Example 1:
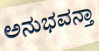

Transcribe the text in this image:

ಅನುಭವನ್ತಾ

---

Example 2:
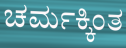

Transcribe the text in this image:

ಚರ್ಮಕ್ಕಿಂತ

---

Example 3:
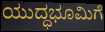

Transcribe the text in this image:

ಯುದ್ಧಭೂಮಿಗೆ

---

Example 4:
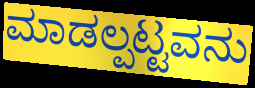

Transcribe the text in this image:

ಮಾಡಲ್ಪಟ್ಟವನು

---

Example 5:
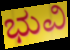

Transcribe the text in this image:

ಭುವಿ